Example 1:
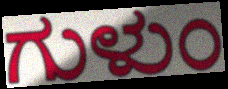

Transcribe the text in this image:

ಗುಳುಂ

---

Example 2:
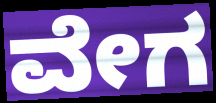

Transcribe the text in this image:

ವೇಗ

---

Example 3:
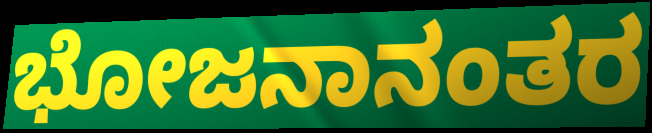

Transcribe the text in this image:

ಭೋಜನಾನಂತರ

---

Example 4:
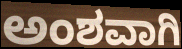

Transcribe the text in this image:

ಅಂಶವಾಗಿ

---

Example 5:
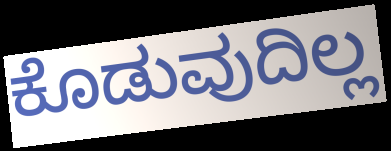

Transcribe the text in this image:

ಕೊಡುವುದಿಲ್ಲ